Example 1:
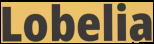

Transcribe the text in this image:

Lobelia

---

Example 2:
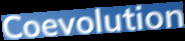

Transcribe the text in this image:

Coevolution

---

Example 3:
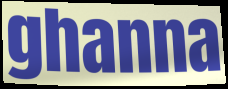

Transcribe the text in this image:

ghanna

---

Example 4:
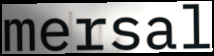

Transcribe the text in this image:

mersal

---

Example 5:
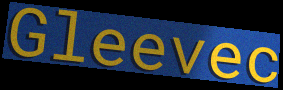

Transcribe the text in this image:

Gleevec